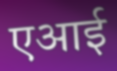
एआई